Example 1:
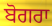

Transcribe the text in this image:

ਬੋਗਰਾ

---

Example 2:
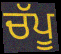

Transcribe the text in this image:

ਚੱਪੂ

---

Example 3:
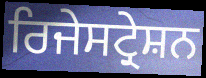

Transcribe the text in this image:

ਰਿਜੇਸਟ੍ਰੇਸ਼ਨ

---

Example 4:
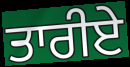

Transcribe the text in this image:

ਤਾਰੀਏ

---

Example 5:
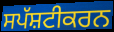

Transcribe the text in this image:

ਸਪੱਸ਼ਟੀਕਰਨ